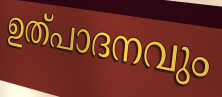
ഉത്പാദനവും